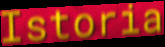
Istoria